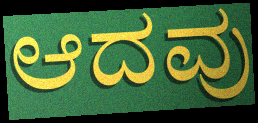
ಆದವು